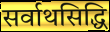
सर्वाथसिद्धि